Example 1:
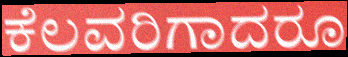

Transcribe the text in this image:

ಕೆಲವರಿಗಾದರೂ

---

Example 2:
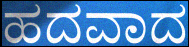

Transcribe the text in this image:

ಹದವಾದ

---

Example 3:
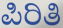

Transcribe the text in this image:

ಪಿರಿತಿ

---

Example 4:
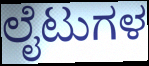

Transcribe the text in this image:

ಲೈಟುಗಳ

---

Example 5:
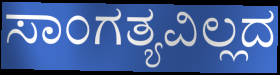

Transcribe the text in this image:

ಸಾಂಗತ್ಯವಿಲ್ಲದ